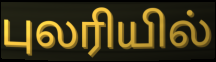
புலரியில்